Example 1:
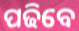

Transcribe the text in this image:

ପଢିବେ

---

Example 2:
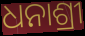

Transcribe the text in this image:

ଧନାଶ୍ରୀ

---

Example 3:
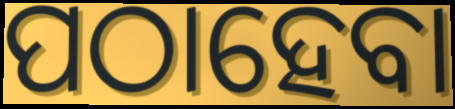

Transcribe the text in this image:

ପଠାହେବା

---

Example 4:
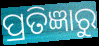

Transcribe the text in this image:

ପ୍ରତିଜ୍ଞାରୁ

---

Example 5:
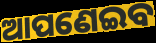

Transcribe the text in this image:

ଆପଣେଇବ